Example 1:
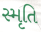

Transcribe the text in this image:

સ્મૃતિ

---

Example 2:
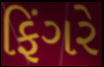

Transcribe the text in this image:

ફિંગરે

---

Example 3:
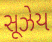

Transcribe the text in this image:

સૂઝેય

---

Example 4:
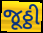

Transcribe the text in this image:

જૂઠ્ઠી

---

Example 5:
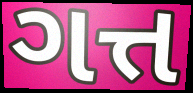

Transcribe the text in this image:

ગત્ત